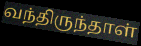
வந்திருந்தாள்